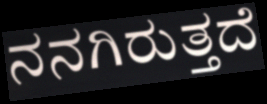
ನನಗಿರುತ್ತದೆ